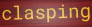
clasping